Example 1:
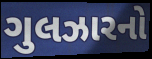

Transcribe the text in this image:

ગુલઝારનો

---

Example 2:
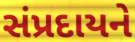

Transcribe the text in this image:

સંપ્રદાયને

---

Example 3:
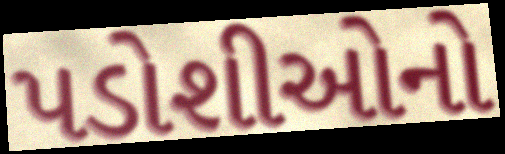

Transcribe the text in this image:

પડોશીઓનો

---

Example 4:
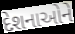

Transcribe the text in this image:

દેશનાઓને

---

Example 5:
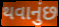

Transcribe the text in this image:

થવાનુંછ